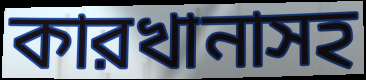
কারখানাসহ